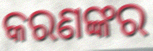
କରଣଙ୍କର